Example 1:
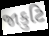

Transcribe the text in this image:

જાકુટિ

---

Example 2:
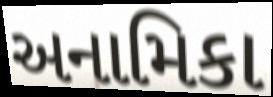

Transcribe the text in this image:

અનામિકા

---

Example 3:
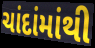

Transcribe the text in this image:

ચાંદાંમાંથી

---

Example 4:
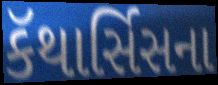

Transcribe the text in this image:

કૅથાર્સિસના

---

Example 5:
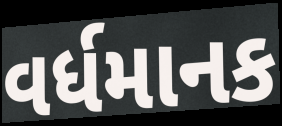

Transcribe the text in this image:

વર્ધમાનક